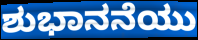
ಶುಭಾನನೆಯು